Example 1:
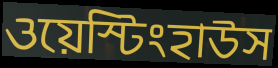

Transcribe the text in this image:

ওয়েস্টিংহাউস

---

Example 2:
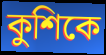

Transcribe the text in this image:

কুশিকে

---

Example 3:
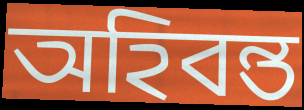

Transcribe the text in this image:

অহিবন্ত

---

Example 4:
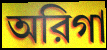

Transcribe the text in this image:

অরিগা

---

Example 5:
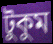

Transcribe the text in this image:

টুকুম